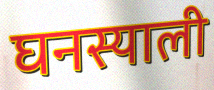
घनस्याली